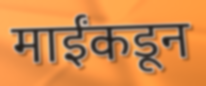
माईंकडून